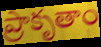
ప్రాకృతాం